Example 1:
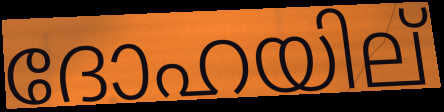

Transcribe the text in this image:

ദോഹയില്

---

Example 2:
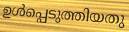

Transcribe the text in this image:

ഉൾപ്പെടുത്തിയതു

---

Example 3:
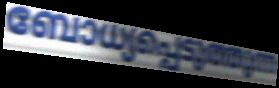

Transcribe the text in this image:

ബോധ്യപ്പെടുത്തുന്ന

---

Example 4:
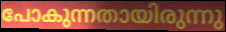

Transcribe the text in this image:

പോകുന്നതായിരുന്നു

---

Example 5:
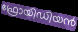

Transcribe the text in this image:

ഫ്രോയിഡിയൻ